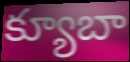
క్యూబా